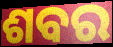
ଶବର